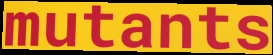
mutants